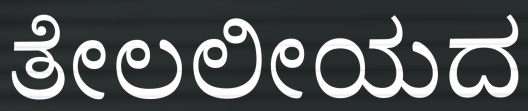
ತೇಲಲೀಯದ